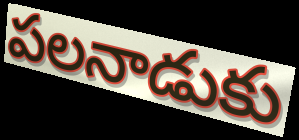
పలనాడుకు